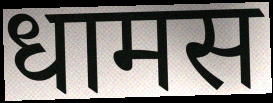
धामस